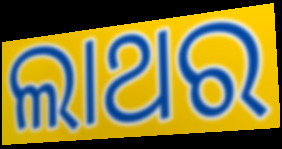
ଲାଥର